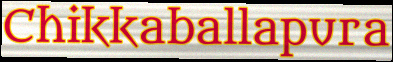
Chikkaballapura